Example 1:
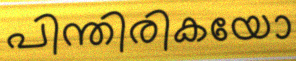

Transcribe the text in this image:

പിന്തിരികയോ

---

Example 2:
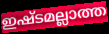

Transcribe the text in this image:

ഇഷ്ടമല്ലാത്ത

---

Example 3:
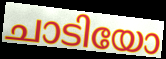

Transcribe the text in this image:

ചാടിയോ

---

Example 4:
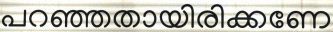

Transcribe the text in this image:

പറഞ്ഞതായിരിക്കണേ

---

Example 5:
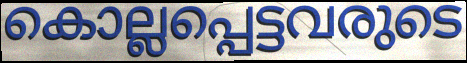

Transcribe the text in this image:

കൊല്ലപ്പെട്ടവരുടെ